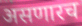
असणारच